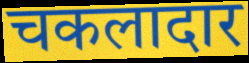
चकलादार